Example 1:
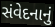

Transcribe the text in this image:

સંવેદનાનું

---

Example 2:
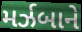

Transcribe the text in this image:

મર્ઝબાને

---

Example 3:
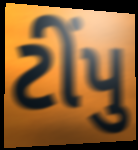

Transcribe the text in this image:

ટીંપુ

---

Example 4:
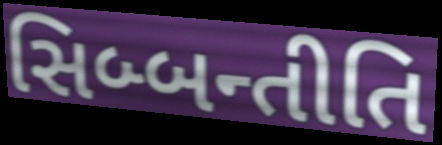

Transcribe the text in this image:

સિબ્બન્તીતિ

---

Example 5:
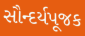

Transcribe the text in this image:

સૌન્દર્યપૂજક